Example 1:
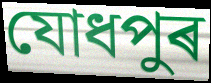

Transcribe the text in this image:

যোধপুৰ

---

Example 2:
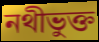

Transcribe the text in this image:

নথীভুক্ত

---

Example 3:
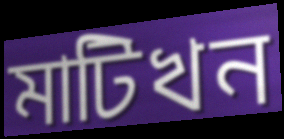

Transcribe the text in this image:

মাটিখন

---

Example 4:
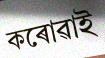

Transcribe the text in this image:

কৰোৱাই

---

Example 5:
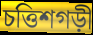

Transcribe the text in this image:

চত্তিশগড়ী